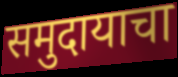
समुदायाचा